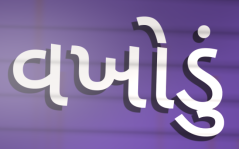
વખોડું